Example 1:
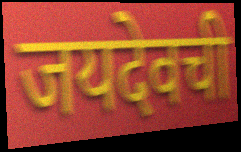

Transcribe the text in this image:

जयदेवची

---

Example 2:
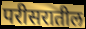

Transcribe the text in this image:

परीसरातील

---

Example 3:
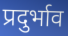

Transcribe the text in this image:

प्रदुर्भाव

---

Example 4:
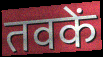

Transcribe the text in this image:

तवकें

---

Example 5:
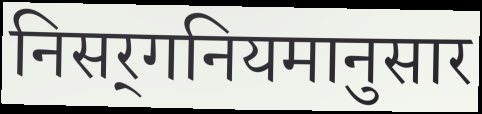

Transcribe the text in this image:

निसर्गनियमानुसार